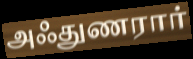
அஃதுணரார்